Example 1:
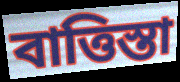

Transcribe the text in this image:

বাত্তিস্তা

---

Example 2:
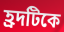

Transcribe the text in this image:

হ্রদটিকে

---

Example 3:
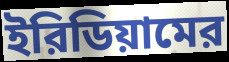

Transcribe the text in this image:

ইরিডিয়ামের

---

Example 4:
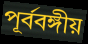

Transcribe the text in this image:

পূর্ববঙ্গীয়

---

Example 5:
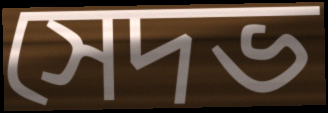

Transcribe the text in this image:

সেদভ